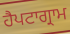
ਹੈਪਟਾਗ੍ਰਾਮ